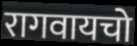
रागवायचो